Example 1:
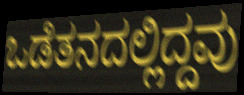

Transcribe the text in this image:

ಒಡೆತನದಲ್ಲಿದ್ದವು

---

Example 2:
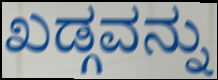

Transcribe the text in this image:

ಖಡ್ಗವನ್ನು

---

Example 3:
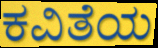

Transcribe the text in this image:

ಕವಿತೆಯ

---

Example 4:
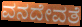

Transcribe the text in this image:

ವನದೇವತೆ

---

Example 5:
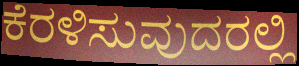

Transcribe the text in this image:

ಕೆರಳಿಸುವುದರಲ್ಲಿ